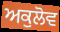
ਅਕੁਲੋਵ